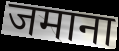
जमाना